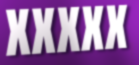
XXXXX